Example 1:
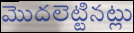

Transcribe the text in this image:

మొదలెట్టినట్లు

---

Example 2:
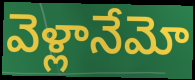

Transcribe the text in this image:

వెళ్లానేమో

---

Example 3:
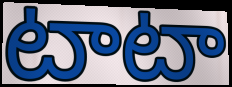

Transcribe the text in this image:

టాటా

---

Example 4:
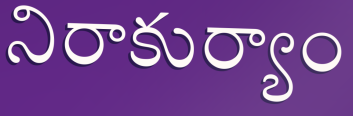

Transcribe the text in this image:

నిరాకుర్యాం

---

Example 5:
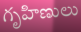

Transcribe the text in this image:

గృహిణులు